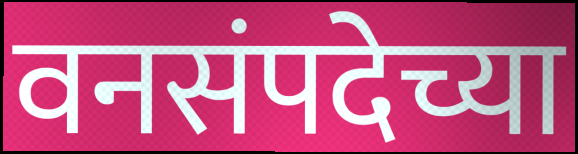
वनसंपदेच्या